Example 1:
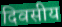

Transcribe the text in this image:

दिवसीय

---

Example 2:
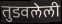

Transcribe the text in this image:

तुडवलेली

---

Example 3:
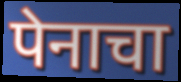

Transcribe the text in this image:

पेनाचा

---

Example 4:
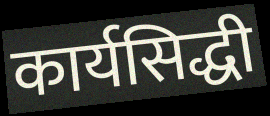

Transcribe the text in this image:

कार्यसिद्धी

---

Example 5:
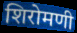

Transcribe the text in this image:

शिरोमणी